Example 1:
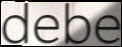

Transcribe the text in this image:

debe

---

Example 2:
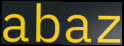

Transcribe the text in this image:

abaz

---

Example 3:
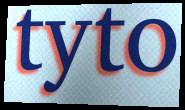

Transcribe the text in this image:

tyto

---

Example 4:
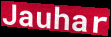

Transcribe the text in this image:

Jauhar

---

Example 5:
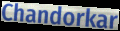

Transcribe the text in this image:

Chandorkar